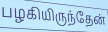
பழகியிருந்தேன்